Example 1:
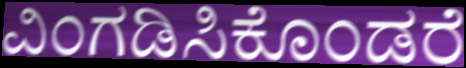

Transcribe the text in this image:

ವಿಂಗಡಿಸಿಕೊಂಡರೆ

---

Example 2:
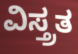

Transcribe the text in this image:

ವಿಸ್ತ್ರತ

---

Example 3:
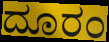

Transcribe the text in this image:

ದೂರಂ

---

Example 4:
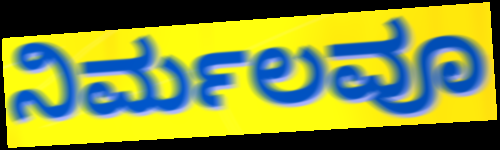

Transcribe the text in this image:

ನಿರ್ಮಲವೂ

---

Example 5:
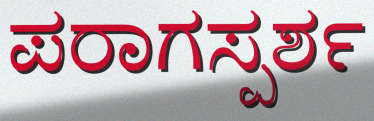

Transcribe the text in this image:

ಪರಾಗಸ್ಪರ್ಶ